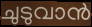
ചുടുവാൻ